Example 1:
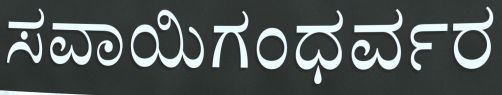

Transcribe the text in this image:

ಸವಾಯಿಗಂಧರ್ವರ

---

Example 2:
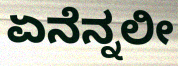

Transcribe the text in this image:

ಏನೆನ್ನಲೀ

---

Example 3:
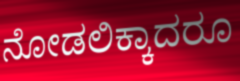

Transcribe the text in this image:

ನೋಡಲಿಕ್ಕಾದರೂ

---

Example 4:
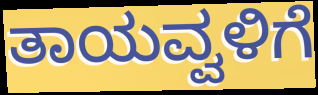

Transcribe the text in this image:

ತಾಯವ್ವಳಿಗೆ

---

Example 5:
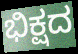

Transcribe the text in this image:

ಭಿಕ್ಷದ